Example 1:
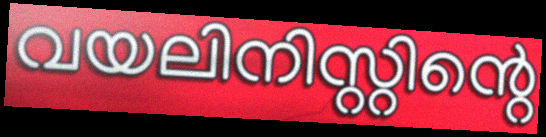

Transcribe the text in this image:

വയലിനിസ്റ്റിന്റെ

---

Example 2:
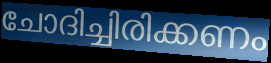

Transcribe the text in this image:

ചോദിച്ചിരിക്കണം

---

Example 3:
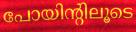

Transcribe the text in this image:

പോയിന്റിലൂടെ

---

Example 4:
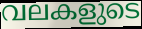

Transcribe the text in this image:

വലകളുടെ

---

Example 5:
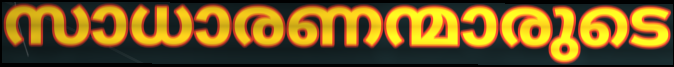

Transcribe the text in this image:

സാധാരണന്മാരുടെ